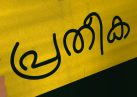
പ്രതീക